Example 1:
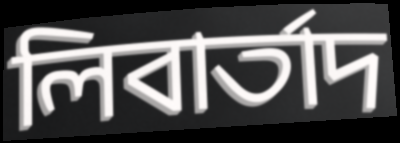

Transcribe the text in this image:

লিবার্তাদ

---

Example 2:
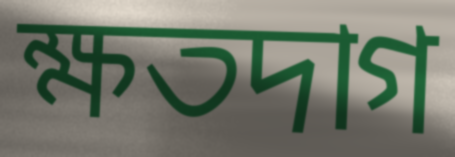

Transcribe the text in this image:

ক্ষতদাগ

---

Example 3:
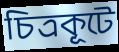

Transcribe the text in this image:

চিত্রকূটে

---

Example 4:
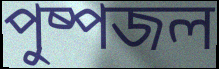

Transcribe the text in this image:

পুষ্পজল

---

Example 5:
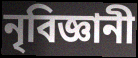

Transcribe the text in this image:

নৃবিজ্ঞানী